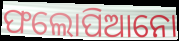
ଫଲୋପିଆନୋ